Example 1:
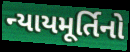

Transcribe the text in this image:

ન્યાયમૂર્તિનો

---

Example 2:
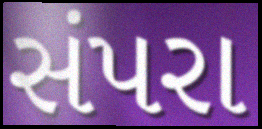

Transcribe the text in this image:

સંપરા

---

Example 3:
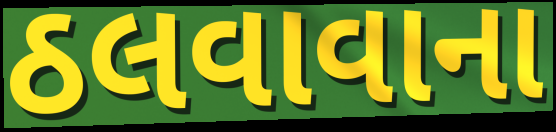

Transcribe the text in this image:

ઠલવાવાના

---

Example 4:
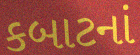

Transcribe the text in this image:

કબાટનાં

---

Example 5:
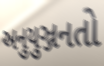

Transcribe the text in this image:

અનુયુઞ્જનતો